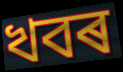
খবৰ